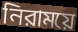
নিরাময়ে